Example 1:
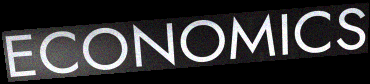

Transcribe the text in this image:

ECONOMICS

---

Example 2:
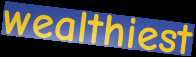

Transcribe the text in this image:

wealthiest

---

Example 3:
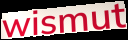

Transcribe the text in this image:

wismut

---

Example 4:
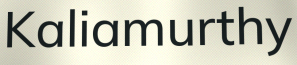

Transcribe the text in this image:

Kaliamurthy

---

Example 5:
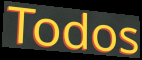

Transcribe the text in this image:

Todos